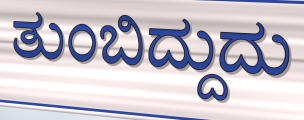
ತುಂಬಿದ್ದುದು